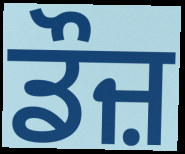
ਡੌਜ਼